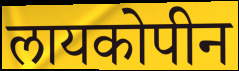
लायकोपीन